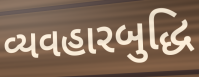
વ્યવહારબુદ્ધિ